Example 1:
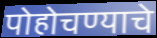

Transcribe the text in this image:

पोहोचण्याचे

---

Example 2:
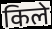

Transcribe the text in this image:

किले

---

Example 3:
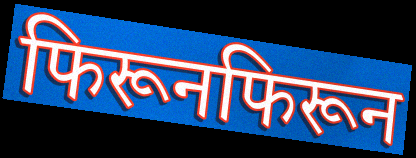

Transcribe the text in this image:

फिरूनफिरून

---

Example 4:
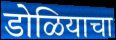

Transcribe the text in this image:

डोळियाचा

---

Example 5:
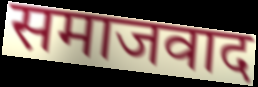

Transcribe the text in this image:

समाजवाद